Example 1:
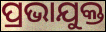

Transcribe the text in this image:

ପ୍ରଭାଯୁକ୍ତ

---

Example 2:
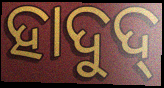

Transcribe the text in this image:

ହାଦୁଦ୍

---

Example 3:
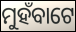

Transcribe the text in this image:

ମୁହଁବାଟେ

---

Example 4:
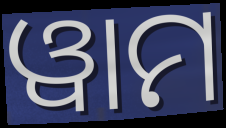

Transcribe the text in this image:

ୱାମ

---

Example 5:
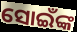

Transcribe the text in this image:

ସୋଇଁଙ୍କ